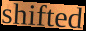
shifted